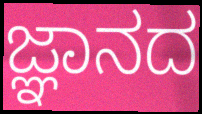
ಜ್ಞಾನದ